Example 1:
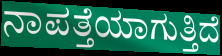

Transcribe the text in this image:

ನಾಪತ್ತೆಯಾಗುತ್ತಿದೆ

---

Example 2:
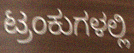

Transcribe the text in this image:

ಟ್ರಂಕುಗಳಲ್ಲಿ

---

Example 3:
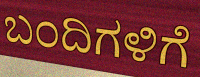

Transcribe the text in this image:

ಬಂದಿಗಳಿಗೆ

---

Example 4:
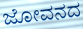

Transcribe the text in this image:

ಜೋವನದ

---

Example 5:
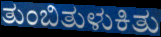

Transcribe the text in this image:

ತುಂಬಿತುಳುಕಿತು